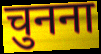
चुनना